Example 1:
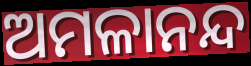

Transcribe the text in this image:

ଅମଳାନନ୍ଦ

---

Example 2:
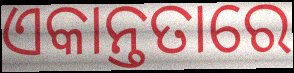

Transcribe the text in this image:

ଏକାନ୍ତତାରେ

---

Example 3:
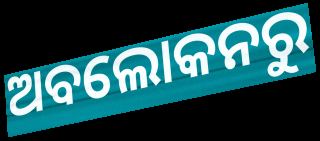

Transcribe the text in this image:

ଅବଲୋକନରୁ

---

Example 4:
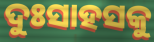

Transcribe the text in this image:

ଦୁଃସାହସକୁ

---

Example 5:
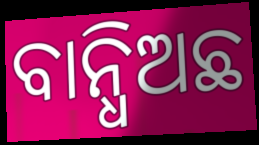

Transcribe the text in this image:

ବାନ୍ଧିଅଛ